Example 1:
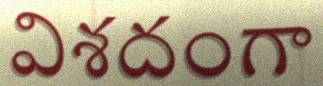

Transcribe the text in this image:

విశదంగా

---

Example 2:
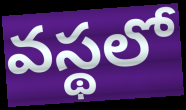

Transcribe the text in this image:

వస్థలో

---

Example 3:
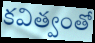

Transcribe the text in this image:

కవిత్వంతో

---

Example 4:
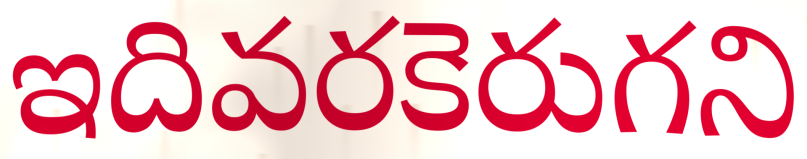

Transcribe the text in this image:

ఇదివరకెరుగని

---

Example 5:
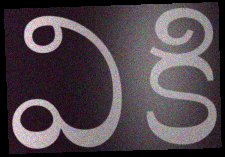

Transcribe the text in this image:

వికి